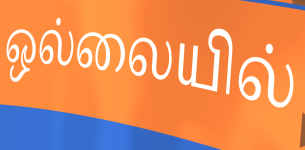
ஒல்லையில்